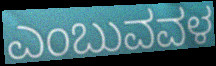
ಎಂಬುವವಳ